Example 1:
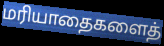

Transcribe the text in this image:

மரியாதைகளைத்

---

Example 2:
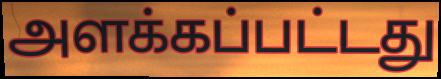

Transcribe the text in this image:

அளக்கப்பட்டது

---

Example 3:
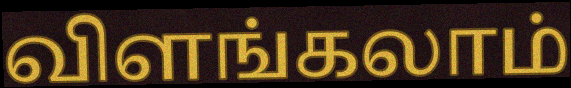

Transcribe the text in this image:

விளங்கலாம்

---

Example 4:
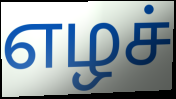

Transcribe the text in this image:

எழச்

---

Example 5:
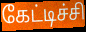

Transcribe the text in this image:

கேட்டிச்சி